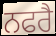
ਨਫਰੈ